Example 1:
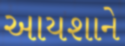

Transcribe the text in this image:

આયશાને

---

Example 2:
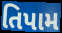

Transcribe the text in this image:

તિપામ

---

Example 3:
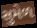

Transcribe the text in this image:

સુમેળ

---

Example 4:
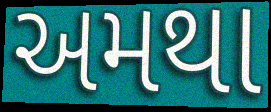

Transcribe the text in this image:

અમથા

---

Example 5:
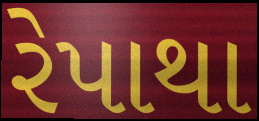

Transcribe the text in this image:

રેપાથા